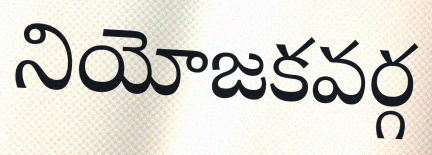
నియోజకవర్గ